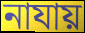
নাযায়